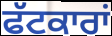
ਫੱਟਕਾਰਾਂ